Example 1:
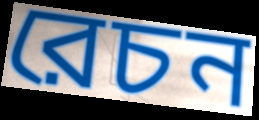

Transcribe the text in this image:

রেচন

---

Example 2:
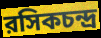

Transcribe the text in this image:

রসিকচন্দ্র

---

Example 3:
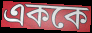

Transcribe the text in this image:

এককে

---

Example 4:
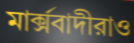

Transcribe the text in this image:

মার্ক্সবাদীরাও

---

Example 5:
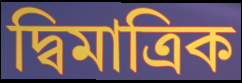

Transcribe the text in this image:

দ্বিমাত্রিক